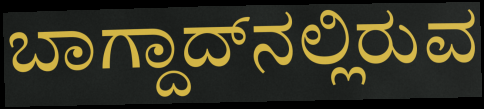
ಬಾಗ್ದಾದ್‌ನಲ್ಲಿರುವ